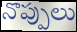
నొప్పులు